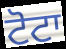
ਟੋਟਾ